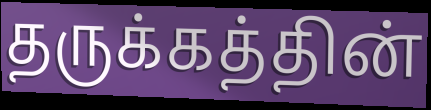
தருக்கத்தின்